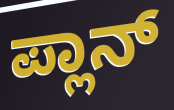
ಪ್ಲಾನ್